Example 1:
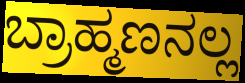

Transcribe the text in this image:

ಬ್ರಾಹ್ಮಣನಲ್ಲ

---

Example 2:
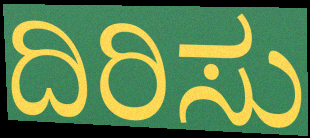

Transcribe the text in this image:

ದಿರಿಸು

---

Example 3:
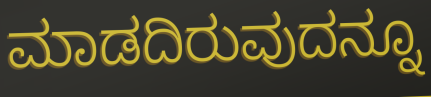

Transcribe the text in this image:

ಮಾಡದಿರುವುದನ್ನೂ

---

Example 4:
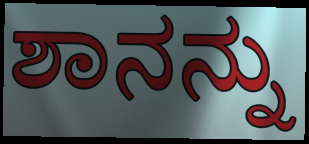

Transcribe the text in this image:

ಶಾನನ್ನು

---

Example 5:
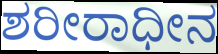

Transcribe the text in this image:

ಶರೀರಾಧೀನ